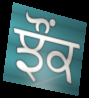
ਝੌਂਕ